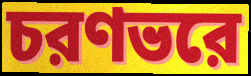
চরণভরে